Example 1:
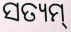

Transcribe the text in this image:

ସତ୍ୟମ୍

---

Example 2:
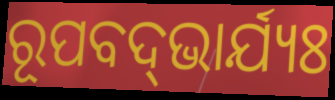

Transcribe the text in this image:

ରୂପବଦ୍‌ଭାର୍ଯ୍ୟଃ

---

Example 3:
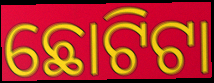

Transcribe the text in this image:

ଛୋଟିଟା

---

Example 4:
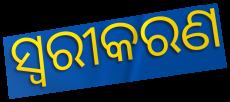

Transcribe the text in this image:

ସ୍ୱରୀକରଣ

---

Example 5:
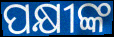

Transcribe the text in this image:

ପକ୍ଷୀଙ୍କ